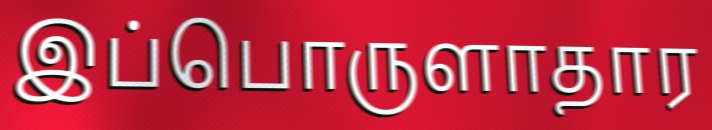
இப்பொருளாதார